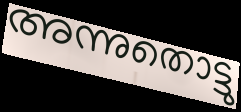
അന്നുതൊട്ടു